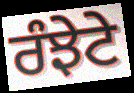
ਰੰਝੇਟੇ